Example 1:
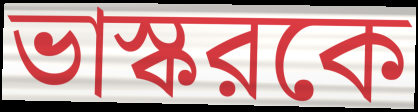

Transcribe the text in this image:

ভাস্করকে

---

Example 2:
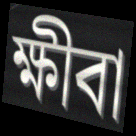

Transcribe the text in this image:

ক্ষীবা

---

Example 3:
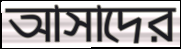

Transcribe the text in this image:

আসাদের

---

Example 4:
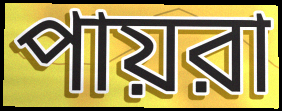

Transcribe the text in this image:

পায়রা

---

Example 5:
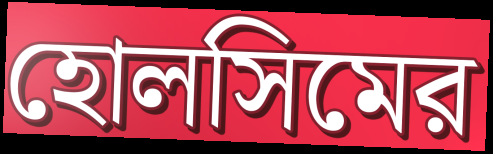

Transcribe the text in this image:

হোলসিমের